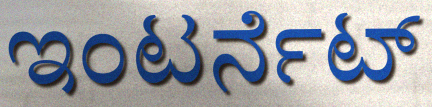
ಇಂಟರ್ನೆಟ್